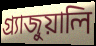
গ্র্যাজুয়ালি